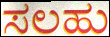
ಸಲಹು